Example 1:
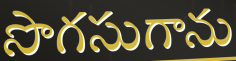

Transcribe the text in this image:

సొగసుగాను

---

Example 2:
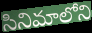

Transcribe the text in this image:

సినిమాలోని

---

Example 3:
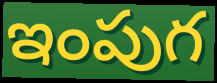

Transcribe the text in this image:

ఇంపుగ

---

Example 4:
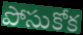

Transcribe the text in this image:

పోసుకోక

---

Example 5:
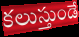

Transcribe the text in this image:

కలుస్తుండే